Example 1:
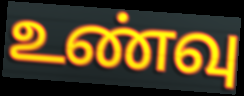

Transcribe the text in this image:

உண்வு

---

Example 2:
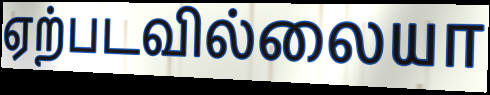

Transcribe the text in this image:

ஏற்படவில்லையா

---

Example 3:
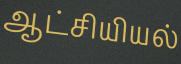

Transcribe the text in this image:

ஆட்சியியல்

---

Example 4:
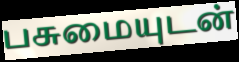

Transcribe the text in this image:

பசுமையுடன்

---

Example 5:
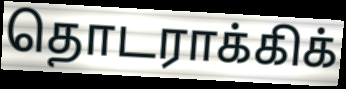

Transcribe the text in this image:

தொடராக்கிக்